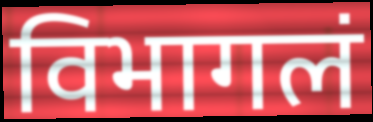
विभागलं